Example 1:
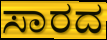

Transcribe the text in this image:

ಸಾರದ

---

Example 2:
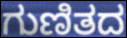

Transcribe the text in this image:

ಗುಣಿತದ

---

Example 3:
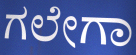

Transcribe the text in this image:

ಗಲೇಗಾ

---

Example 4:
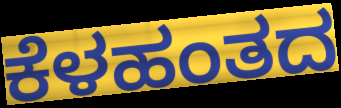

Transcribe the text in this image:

ಕೆಳಹಂತದ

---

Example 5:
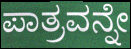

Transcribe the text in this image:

ಪಾತ್ರವನ್ನೇ